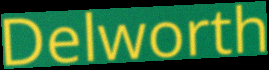
Delworth